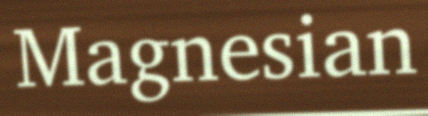
Magnesian